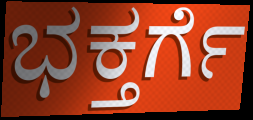
ಭಕ್ತರ್ಗೆ